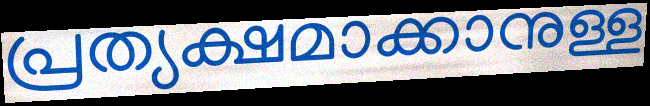
പ്രത്യക്ഷമാക്കാനുള്ള